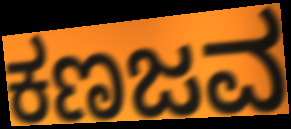
ಕಣಜವ